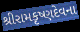
શ્રીરામકૃષ્ણદેવના